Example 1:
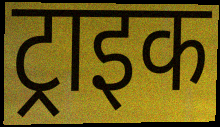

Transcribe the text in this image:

ट्राइक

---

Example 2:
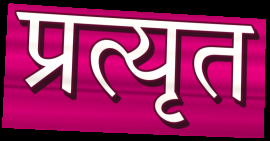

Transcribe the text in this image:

प्रत्यृत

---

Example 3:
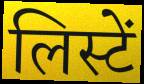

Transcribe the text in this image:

लिस्टें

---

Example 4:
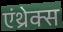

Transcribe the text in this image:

एंथ्रेक्स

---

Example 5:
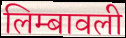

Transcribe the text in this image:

लिम्बावली